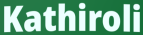
Kathiroli